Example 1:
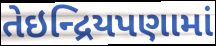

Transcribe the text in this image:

તેઇન્દ્રિયપણામાં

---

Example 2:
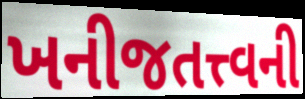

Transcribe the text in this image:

ખનીજતત્ત્વની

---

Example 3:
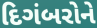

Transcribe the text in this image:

દિગંબરોને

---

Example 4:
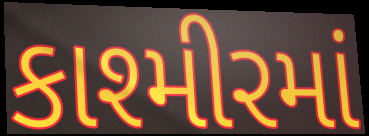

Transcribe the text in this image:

કાશ્મીરમાં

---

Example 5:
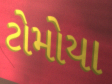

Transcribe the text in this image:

ટોમોયા